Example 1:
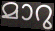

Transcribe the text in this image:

മാറു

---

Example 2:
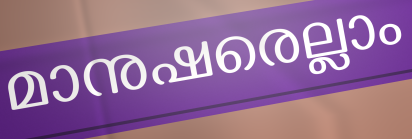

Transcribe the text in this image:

മാനുഷരെല്ലാം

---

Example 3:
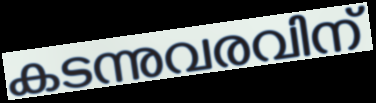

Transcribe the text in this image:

കടന്നുവരവിന്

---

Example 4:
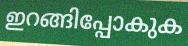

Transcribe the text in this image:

ഇറങ്ങിപ്പോകുക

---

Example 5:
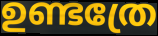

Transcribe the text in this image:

ഉണ്ടത്രേ